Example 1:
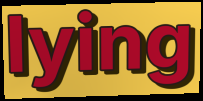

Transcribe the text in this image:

lying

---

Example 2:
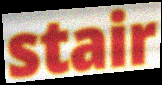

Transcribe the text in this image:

stair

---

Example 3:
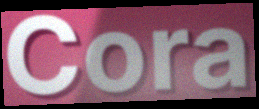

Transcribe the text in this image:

Cora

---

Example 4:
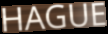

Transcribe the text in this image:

HAGUE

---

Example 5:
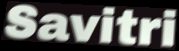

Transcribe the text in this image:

Savitri